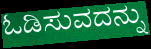
ಓಡಿಸುವದನ್ನು